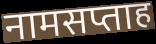
नामसप्ताह